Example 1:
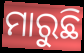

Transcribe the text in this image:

ମାରୁଛି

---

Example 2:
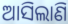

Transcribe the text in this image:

ଆସିଲାଣି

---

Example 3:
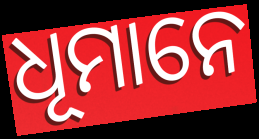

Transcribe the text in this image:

ଧୂମାନେ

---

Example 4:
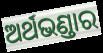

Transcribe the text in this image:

ଅର୍ଥଭଣ୍ଡାର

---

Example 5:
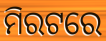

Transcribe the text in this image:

ମିରଟରେ